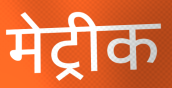
मेट्रीक